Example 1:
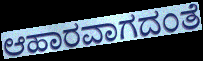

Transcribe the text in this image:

ಆಹಾರವಾಗದಂತೆ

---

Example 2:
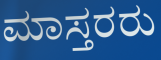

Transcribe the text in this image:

ಮಾಸ್ತರರು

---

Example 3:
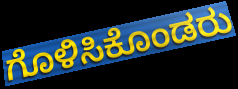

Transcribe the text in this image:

ಗೊಳಿಸಿಕೊಂಡರು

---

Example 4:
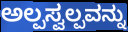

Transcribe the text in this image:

ಅಲ್ಪಸ್ವಲ್ಪವನ್ನು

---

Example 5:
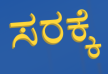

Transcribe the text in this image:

ಸರಕ್ಕೆ